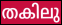
തകിലു